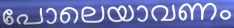
പോലെയാവണം